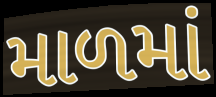
માળમાં